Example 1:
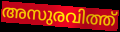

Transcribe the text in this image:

അസുരവിത്ത്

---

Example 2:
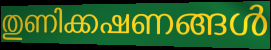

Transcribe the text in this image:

തുണിക്കഷണങ്ങൾ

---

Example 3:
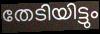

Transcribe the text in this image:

തേടിയിട്ടും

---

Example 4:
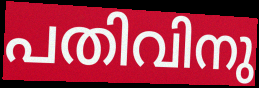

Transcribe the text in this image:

പതിവിനു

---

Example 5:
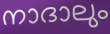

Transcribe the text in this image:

നാദാലും